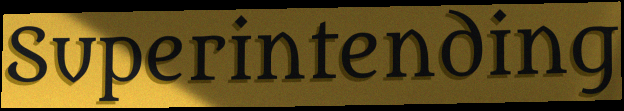
Superintending